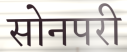
सोनपरी